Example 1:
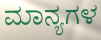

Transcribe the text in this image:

ಮಾನ್ಯಗಳ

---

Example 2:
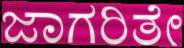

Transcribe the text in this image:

ಜಾಗರಿತೇ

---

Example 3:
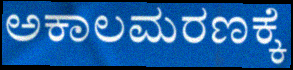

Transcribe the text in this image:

ಅಕಾಲಮರಣಕ್ಕೆ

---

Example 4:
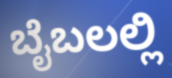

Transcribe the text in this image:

ಬೈಬಲಲ್ಲಿ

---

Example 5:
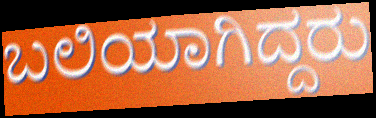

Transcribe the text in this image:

ಬಲಿಯಾಗಿದ್ದರು